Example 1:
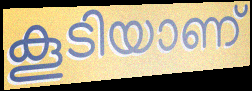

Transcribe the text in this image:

കൂടിയാണ്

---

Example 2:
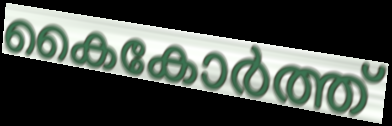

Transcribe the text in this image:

കൈകോർത്ത്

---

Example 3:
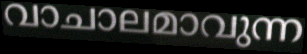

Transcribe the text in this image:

വാചാലമാവുന്ന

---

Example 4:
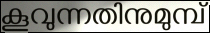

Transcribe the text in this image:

കൂവുന്നതിനുമുമ്പ്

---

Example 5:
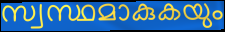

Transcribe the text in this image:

സ്വസ്ഥമാകുകയും